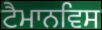
ਟੈਮਾਨਵਿਸ